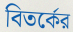
বিতর্কের